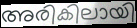
അരികിലായി